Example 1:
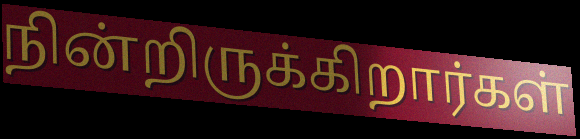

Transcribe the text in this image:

நின்றிருக்கிறார்கள்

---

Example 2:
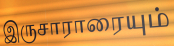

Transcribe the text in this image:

இருசாராரையும்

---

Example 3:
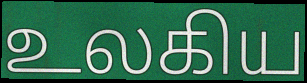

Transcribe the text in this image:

உலகிய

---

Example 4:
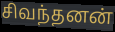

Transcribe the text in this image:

சிவந்தனன்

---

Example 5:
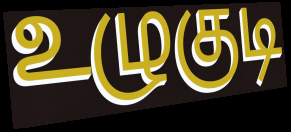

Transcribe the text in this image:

உழுகுடி